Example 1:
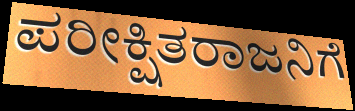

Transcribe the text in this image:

ಪರೀಕ್ಷಿತರಾಜನಿಗೆ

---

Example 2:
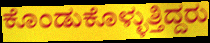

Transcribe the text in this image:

ಕೊಂಡುಕೊಳ್ಳುತ್ತಿದ್ದರು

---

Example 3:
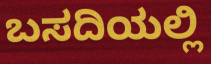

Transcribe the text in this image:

ಬಸದಿಯಲ್ಲಿ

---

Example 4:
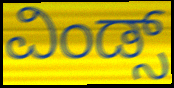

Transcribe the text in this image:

ವಿಂಡ್ಸ್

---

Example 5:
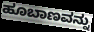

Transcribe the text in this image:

ಹೂಬಾಣವನ್ನು